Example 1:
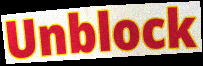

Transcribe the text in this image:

Unblock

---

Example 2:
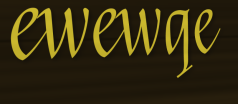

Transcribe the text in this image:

ewewqe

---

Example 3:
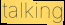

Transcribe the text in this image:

talking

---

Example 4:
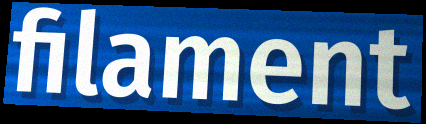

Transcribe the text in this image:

filament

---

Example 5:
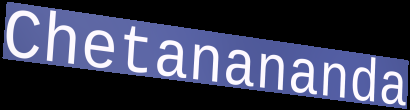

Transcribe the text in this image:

Chetanananda